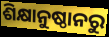
ଶିକ୍ଷାନୁଷ୍ଠାନରୁ